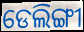
ଡେଲିଙ୍ଗୀ